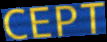
CEPT